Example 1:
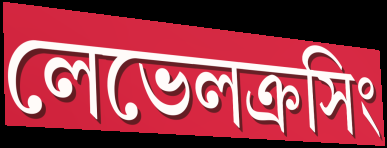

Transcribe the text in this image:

লেভেলক্রসিং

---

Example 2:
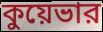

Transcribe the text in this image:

কুয়েভার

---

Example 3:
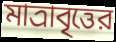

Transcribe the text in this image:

মাত্রাবৃত্তের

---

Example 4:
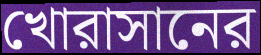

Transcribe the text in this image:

খোরাসানের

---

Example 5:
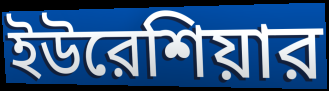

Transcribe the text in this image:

ইউরেশিয়ার